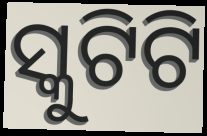
ସ୍କୁଟିଟି